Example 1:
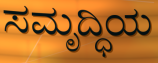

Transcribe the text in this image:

ಸಮೃದ್ಧಿಯ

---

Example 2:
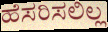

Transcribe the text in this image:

ಹೆಸರಿಸಲಿಲ್ಲ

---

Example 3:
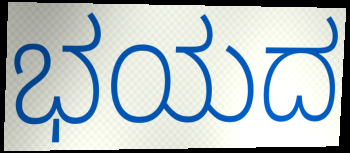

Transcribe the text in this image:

ಭಯದ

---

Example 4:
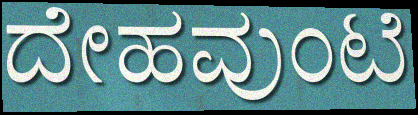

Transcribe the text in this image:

ದೇಹವುಂಟೆ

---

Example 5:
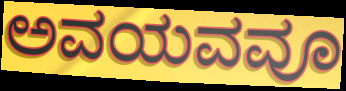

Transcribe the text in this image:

ಅವಯವವೂ